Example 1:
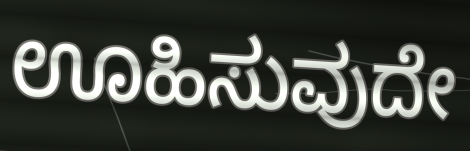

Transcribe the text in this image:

ಊಹಿಸುವುದೇ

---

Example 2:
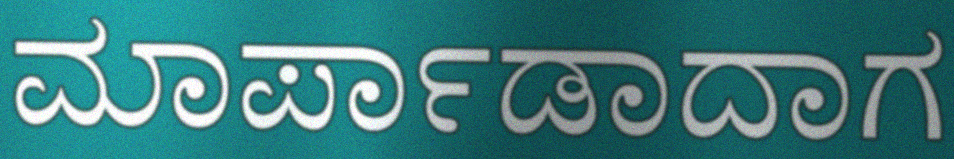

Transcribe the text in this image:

ಮಾರ್ಪಾಡಾದಾಗ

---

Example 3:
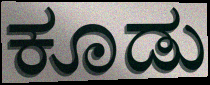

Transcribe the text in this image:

ಕೂಡು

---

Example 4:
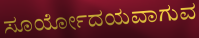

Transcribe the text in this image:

ಸೂರ್ಯೋದಯವಾಗುವ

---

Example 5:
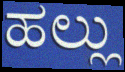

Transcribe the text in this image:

ಹಲ್ಲು